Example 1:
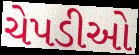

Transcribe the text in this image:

ચેપડીઓ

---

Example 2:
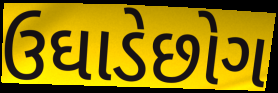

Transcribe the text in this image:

ઉઘાડેછોગ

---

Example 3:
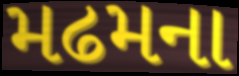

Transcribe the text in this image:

મઢમના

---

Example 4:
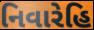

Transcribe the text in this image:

નિવારેહિ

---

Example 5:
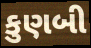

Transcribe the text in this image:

કુણબી